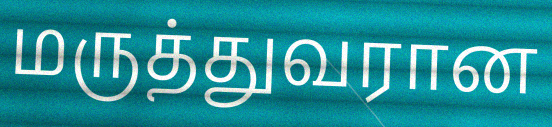
மருத்துவரான